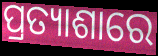
ପ୍ରତ୍ୟାଶାରେ